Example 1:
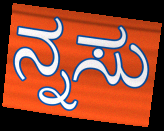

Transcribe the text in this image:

ನ್ನಸು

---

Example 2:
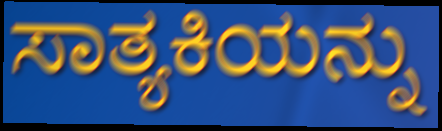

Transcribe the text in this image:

ಸಾತ್ಯಕಿಯನ್ನು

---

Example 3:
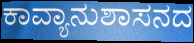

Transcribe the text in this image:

ಕಾವ್ಯಾನುಶಾಸನದ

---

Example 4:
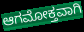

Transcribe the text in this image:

ಆಗಮೋಕ್ತವಾಗಿ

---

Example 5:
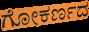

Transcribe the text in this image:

ಗೋಕರ್ಣದ